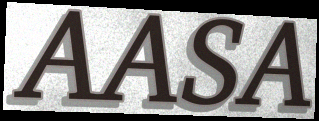
AASA